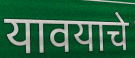
यावयाचे